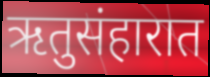
ऋतुसंहारात